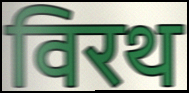
विरथ